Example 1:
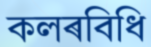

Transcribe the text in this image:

কলৰবিধি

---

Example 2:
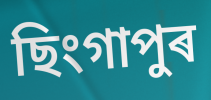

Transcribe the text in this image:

ছিংগাপুৰ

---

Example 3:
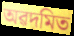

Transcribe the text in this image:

অৱদমিত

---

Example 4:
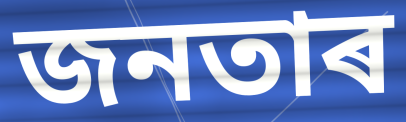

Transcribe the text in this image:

জনতাৰ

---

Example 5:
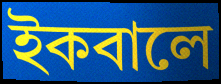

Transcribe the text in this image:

ইকবালে